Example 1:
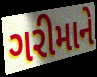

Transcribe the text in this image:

ગરીમાને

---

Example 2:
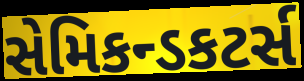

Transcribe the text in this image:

સેમિકન્ડકટર્સ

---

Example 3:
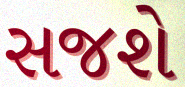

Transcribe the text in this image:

સજશે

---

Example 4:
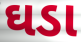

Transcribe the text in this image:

ઘડા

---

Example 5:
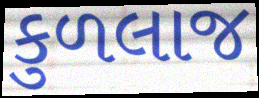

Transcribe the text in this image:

કુળલાજ